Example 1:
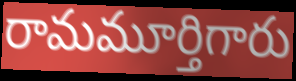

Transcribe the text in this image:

రామమూర్తిగారు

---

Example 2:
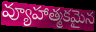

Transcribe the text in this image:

వ్యూహాత్మకమైన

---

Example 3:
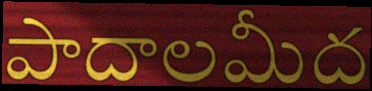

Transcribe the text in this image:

పాదాలమీద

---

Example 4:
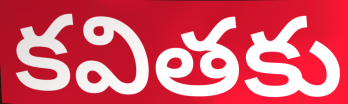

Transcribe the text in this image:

కవితకు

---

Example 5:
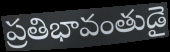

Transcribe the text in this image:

ప్రతిభావంతుడై